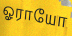
ஓராயோ